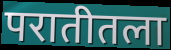
परातीतला